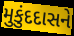
મુકુંદદાસને